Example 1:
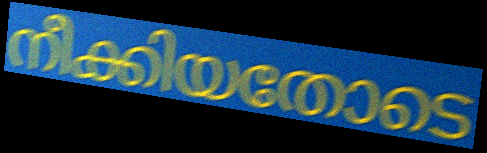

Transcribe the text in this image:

നീക്കിയതോടെ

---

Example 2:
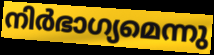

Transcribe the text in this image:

നിർഭാഗ്യമെന്നു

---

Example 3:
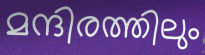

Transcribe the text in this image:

മന്ദിരത്തിലും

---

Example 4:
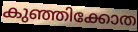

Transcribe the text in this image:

കുഞ്ഞിക്കോത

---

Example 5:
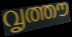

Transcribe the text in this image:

വൃത്തൗ